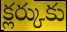
క్లర్కుకు